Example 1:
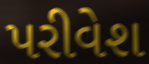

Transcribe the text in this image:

પરીવેશ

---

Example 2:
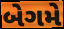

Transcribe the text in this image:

બેગમે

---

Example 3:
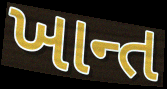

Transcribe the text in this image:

ખાન્ત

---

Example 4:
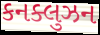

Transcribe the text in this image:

કનક્લુઝન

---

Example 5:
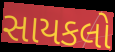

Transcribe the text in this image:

સાયકલો